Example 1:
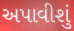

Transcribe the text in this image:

અપાવીશું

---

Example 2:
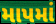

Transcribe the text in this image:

માપમાં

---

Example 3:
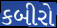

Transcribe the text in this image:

કબીરો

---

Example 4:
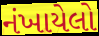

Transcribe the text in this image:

નંખાયેલો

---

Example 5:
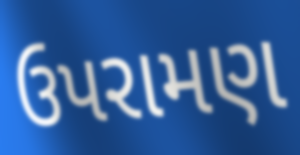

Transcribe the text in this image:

ઉપરામણ